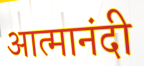
आत्मानंदी